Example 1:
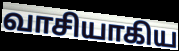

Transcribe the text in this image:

வாசியாகிய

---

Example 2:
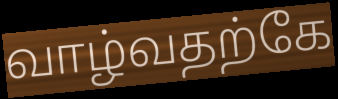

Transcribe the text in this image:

வாழ்வதற்கே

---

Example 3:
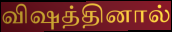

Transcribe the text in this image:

விஷத்தினால்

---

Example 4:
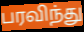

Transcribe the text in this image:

பரவிந்து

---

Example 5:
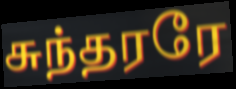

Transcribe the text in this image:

சுந்தரரே